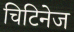
चिटिनेज